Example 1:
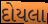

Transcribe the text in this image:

દોયલા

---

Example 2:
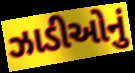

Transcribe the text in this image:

ઝાડીઓનું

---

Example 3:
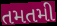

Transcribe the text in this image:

તમતમી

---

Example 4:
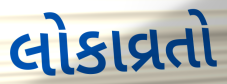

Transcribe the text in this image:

લોકાવ્રતો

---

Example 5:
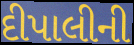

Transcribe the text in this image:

દીપાલીની